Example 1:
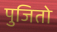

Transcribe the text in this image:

पुजितो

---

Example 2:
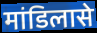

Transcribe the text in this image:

मांडिलासे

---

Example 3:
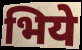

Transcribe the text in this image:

भिये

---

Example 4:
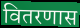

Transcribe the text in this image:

वितरणास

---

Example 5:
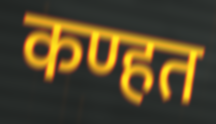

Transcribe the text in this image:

कण्हत